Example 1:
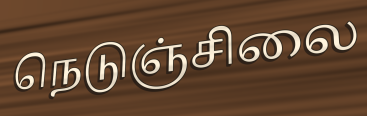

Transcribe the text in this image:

நெடுஞ்சிலை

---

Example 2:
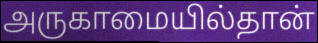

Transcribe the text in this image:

அருகாமையில்தான்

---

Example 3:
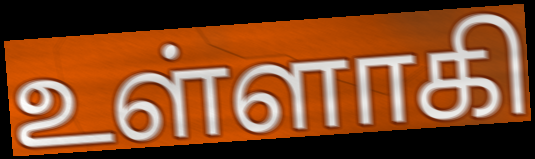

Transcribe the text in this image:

உள்ளாகி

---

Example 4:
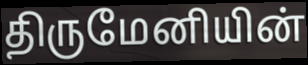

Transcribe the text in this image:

திருமேனியின்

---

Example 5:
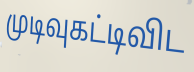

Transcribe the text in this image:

முடிவுகட்டிவிட